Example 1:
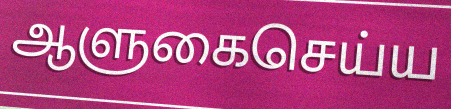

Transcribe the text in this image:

ஆளுகைசெய்ய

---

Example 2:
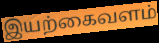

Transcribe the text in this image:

இயற்கைவளம்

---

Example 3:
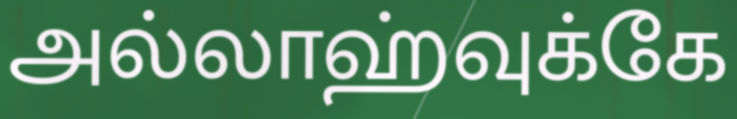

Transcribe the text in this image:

அல்லாஹ்வுக்கே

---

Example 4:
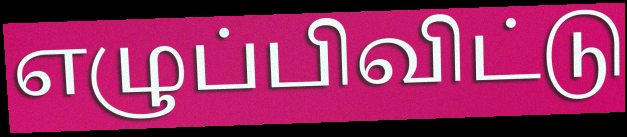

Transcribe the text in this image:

எழுப்பிவிட்டு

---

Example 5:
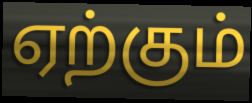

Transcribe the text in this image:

ஏற்கும்